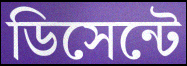
ডিসেন্টে